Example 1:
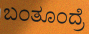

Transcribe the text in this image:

ಬಂತೂಂದ್ರೆ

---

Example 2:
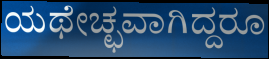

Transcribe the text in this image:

ಯಥೇಚ್ಛವಾಗಿದ್ದರೂ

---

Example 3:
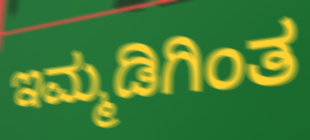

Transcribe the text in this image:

ಇಮ್ಮಡಿಗಿಂತ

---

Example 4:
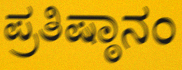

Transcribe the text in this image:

ಪ್ರತಿಷ್ಠಾನಂ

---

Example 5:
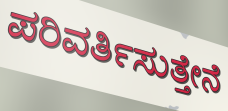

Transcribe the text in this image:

ಪರಿವರ್ತಿಸುತ್ತೇನೆ